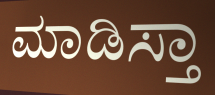
ಮಾಡಿಸ್ತಾ